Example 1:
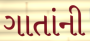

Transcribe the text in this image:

ગાતાંની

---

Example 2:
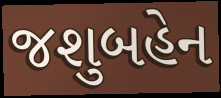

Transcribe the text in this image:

જશુબહેન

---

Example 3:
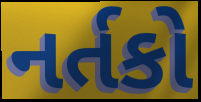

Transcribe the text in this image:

નર્તકો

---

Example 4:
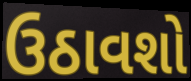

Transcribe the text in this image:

ઉઠાવશો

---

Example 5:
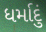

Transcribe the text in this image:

ધર્માદું